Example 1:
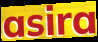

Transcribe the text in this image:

asira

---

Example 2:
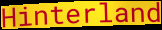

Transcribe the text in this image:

Hinterland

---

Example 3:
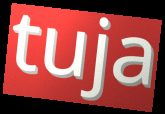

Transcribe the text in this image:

tuja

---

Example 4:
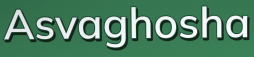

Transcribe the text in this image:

Asvaghosha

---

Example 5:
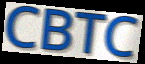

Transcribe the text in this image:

CBTC